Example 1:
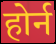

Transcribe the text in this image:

होर्न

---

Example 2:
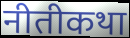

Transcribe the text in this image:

नीतीकथा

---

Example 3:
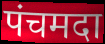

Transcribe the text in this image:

पंचमदा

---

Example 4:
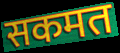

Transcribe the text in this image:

सकमत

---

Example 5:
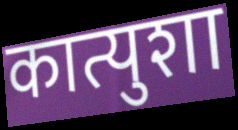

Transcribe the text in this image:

कात्युशा